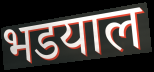
भडयाल